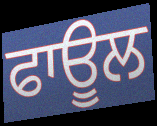
ਫਾਊਲ